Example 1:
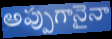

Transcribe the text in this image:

అప్పుగానైనా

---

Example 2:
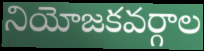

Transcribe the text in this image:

నియోజకవర్గాల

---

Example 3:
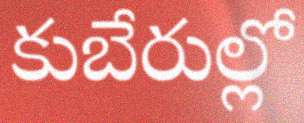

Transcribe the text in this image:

కుబేరుల్లో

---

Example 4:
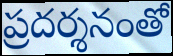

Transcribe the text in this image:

ప్రదర్శనంతో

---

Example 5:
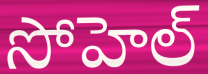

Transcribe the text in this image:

సోహెల్